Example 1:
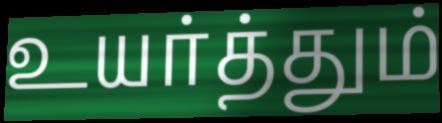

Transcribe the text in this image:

உயர்த்தும்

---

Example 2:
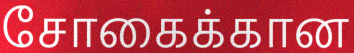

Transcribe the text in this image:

சோகைக்கான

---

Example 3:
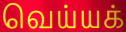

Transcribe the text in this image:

வெய்யக்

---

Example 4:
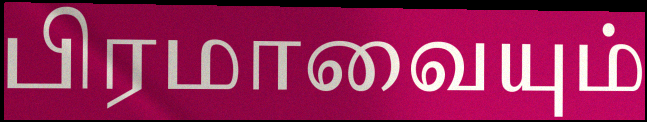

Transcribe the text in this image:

பிரமாவையும்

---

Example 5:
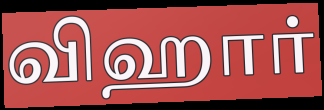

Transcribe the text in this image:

விஹார்